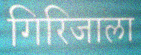
गिरिजाला